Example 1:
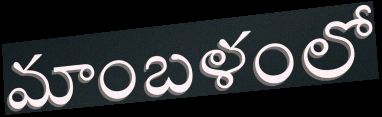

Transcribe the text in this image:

మాంబళంలో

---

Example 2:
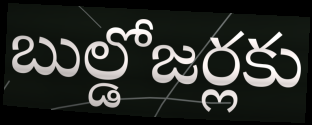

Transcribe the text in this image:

బుల్డోజర్లకు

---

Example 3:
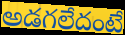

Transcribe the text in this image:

అడగలేదంటే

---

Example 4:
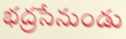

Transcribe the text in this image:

భద్రసేనుండు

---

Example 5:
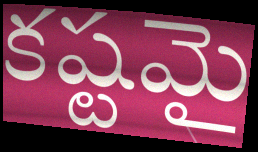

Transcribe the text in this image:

కష్టమై